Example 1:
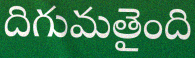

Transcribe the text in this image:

దిగుమతైంది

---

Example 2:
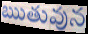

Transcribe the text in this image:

ఋతువున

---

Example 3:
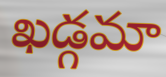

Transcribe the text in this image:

ఖడ్గమా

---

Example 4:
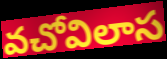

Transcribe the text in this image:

వచోవిలాస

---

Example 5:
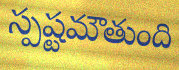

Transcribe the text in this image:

స్పష్టమౌతుంది